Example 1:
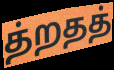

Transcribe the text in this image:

த்றதத்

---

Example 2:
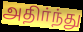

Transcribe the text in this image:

அதிர்ந்து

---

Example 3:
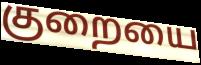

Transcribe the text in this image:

குறையை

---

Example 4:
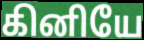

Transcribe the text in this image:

கினியே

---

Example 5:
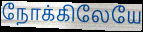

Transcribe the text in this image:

நோக்கிலேயே